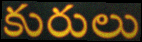
కురులు